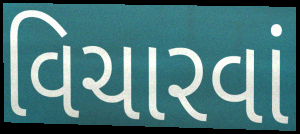
વિચારવાં